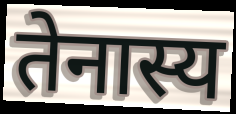
तेनास्य